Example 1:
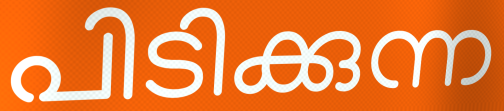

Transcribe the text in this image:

പിടിക്കുന്ന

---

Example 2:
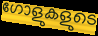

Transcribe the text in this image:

ഗോളുകളുടെ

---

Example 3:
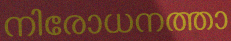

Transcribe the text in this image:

നിരോധനത്താ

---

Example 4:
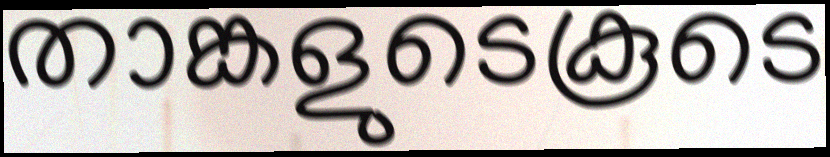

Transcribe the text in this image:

താങ്കളുടെകൂടെ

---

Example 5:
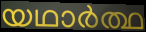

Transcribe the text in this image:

യഥാർത്ഥ